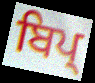
ਬਿਪ੍